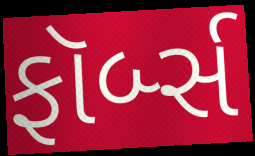
ફૉર્બ્સ